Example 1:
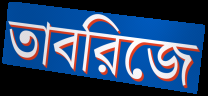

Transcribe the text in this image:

তাবরিজে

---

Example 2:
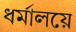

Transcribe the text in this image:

ধর্মালয়ে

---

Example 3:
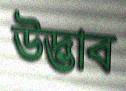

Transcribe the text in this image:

উদ্ভাব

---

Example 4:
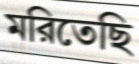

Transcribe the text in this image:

মরিতেছি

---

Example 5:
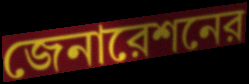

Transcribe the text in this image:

জেনারেশনের